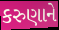
કરુણાને